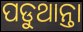
ପଡୁଥାନ୍ତା